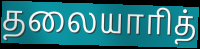
தலையாரித்